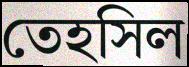
তেহসিল